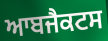
ਆਬਜੈਕਟਸ